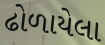
ઢોળાયેલા